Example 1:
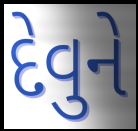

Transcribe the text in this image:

દેવુને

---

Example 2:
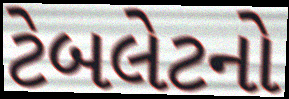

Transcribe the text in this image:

ટેબલેટનો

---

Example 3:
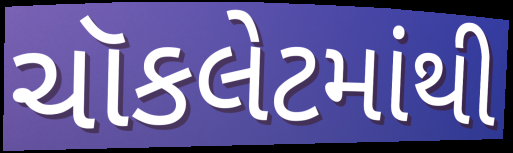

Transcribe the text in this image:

ચૉકલેટમાંથી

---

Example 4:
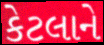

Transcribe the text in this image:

કેટલાને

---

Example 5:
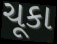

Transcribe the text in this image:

ચૂકા